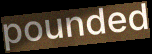
pounded